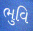
ભુવિ